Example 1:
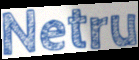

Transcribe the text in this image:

Netru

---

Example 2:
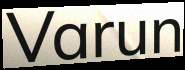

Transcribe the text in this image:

Varun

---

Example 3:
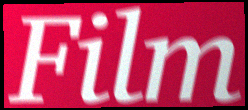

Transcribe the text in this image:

Film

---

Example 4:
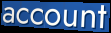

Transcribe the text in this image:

account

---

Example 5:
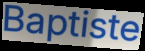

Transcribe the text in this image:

Baptiste